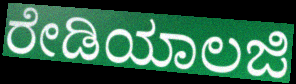
ರೇಡಿಯಾಲಜಿ